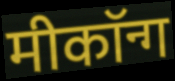
मीकॉन्ग